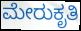
ಮೇರುಕೃತಿ